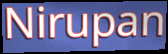
Nirupan